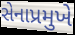
સેનાપ્રમુખે